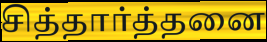
சித்தார்த்தனை